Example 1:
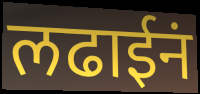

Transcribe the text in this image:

लढाईनं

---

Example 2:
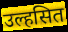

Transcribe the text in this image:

उल्हसित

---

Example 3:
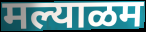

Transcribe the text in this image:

मल्याळम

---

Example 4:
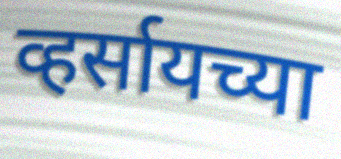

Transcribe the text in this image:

व्हर्सायच्या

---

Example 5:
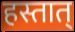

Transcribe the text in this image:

हस्तात्